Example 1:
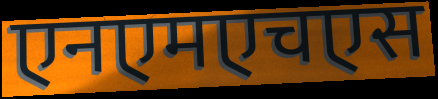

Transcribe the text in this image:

एनएमएचएस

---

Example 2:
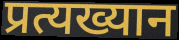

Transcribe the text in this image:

प्रत्यख्यान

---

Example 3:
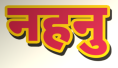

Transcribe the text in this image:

नहनु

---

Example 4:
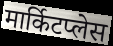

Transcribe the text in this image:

मार्किटप्लेस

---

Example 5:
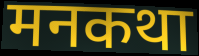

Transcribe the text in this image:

मनकथा